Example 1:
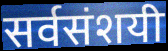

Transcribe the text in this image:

सर्वसंशयी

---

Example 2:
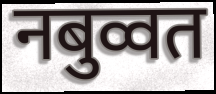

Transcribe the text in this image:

नबुव्वत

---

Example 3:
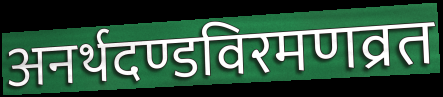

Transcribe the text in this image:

अनर्थदण्डविरमणव्रत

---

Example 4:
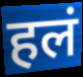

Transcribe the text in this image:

हलं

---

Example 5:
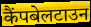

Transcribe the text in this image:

कैंपबेलटाउन